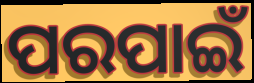
ପରପାଇଁ